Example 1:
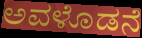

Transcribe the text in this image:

ಅವಳೊಡನೆ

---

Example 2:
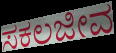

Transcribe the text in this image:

ಸಕಲಜೀವ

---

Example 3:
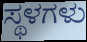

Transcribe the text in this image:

ಸ್ಥಳಗಳು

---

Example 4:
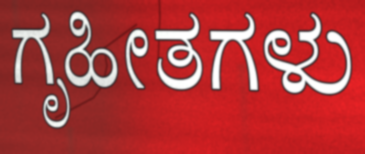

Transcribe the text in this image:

ಗೃಹೀತಗಳು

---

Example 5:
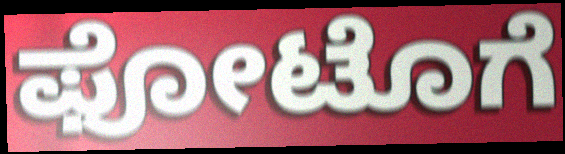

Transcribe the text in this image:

ಫೋಟೊಗೆ